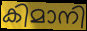
കിമാനി